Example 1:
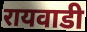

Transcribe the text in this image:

रायवाडी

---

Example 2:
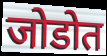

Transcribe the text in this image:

जोडोत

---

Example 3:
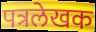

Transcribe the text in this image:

पत्रलेखक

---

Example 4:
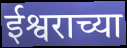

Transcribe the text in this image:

ईश्वराच्या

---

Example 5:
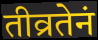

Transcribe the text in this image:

तीव्रतेनं